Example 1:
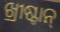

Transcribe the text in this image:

ଖ୍ରୀଷ୍ଟାନ୍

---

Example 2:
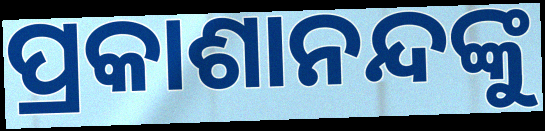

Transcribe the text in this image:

ପ୍ରକାଶାନନ୍ଦଙ୍କୁ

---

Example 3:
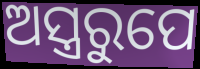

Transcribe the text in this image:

ଅସ୍ତ୍ରରୁପେ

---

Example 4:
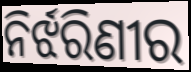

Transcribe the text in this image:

ନିର୍ଝରିଣୀର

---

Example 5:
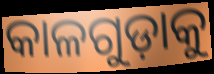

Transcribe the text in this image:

କାଳଗୁଡ଼ାକୁ